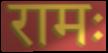
रामः